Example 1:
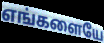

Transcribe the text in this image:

எங்களையே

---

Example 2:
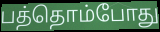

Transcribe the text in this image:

பத்தொம்போது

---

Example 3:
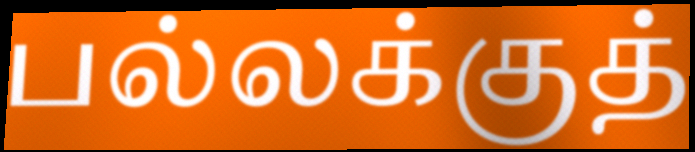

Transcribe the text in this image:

பல்லக்குத்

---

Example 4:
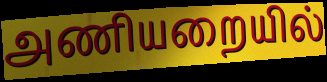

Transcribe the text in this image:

அணியறையில்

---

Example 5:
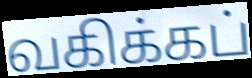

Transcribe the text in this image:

வகிக்கப்